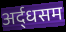
अर्द्धसम